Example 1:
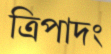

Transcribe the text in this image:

ত্রিপাদং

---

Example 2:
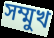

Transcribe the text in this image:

সম্মুখ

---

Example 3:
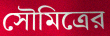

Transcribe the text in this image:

সৌমিত্রের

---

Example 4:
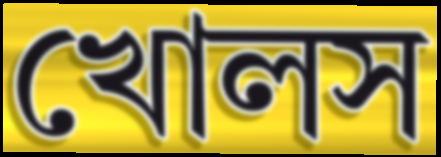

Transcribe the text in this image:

খোলস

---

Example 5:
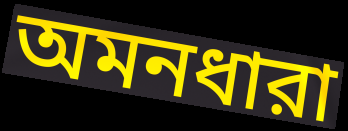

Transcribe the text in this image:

অমনধারা